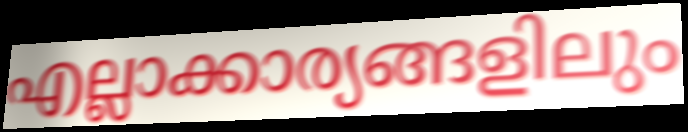
എല്ലാക്കാര്യങ്ങളിലും